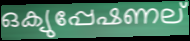
ഒക്യുപ്പേഷണല്